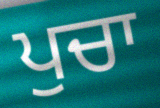
ਪੁਚਾ